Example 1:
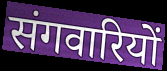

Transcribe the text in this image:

संगवारियों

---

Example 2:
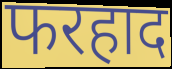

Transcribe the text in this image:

फरहाद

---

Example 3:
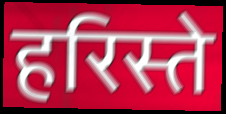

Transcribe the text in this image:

हरिस्ते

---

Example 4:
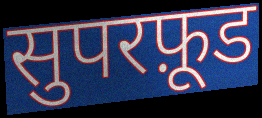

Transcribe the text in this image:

सुपरफ़ूड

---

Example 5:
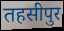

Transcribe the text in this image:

तहसीपुर